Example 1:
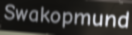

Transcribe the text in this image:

Swakopmund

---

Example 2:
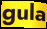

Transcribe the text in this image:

gula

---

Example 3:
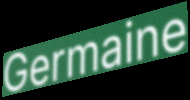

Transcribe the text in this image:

Germaine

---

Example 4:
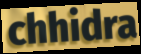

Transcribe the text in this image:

chhidra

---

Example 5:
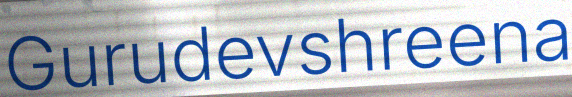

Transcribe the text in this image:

Gurudevshreena